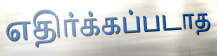
எதிர்க்கப்படாத